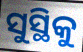
ସୁସ୍ଥିକୁ